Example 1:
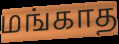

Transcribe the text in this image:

மங்காத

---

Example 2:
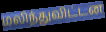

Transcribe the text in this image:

மலிந்துவிட்டன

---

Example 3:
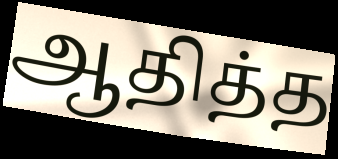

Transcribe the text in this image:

ஆதித்த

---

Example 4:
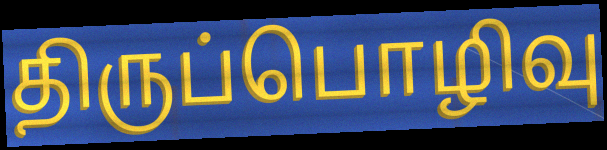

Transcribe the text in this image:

திருப்பொழிவு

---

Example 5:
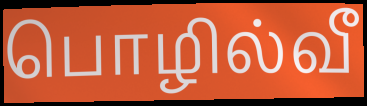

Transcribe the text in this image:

பொழில்வீ